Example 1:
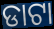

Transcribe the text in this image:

ଡାଟା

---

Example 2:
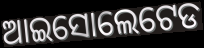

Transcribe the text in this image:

ଆଇସୋଲେଟେଡ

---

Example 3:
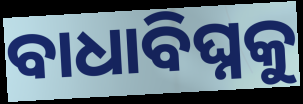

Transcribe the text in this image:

ବାଧାବିଘ୍ନକୁ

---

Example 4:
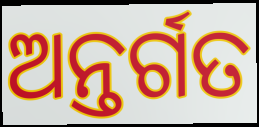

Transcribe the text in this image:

ଅନ୍ତର୍ଗତ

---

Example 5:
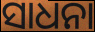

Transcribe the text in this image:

ସାଧନା